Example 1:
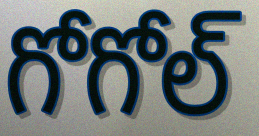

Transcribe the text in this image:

గోగోల్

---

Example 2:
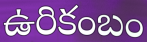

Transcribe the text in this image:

ఉరికంబం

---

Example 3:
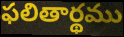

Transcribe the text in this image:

ఫలితార్థము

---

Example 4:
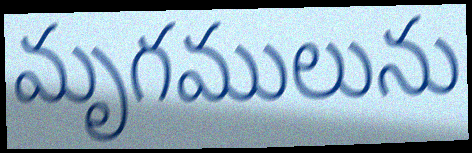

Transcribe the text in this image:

మృగములును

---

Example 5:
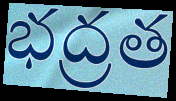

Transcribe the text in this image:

భద్రత